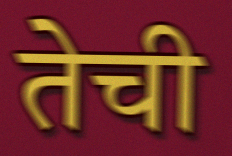
तेची